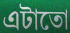
এটাতো